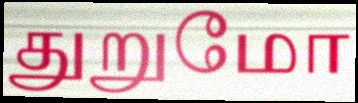
துறுமோ